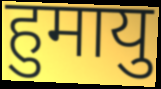
हुमायु